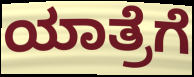
ಯಾತ್ರೆಗೆ